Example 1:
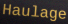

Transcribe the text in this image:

Haulage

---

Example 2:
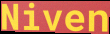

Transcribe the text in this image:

Niven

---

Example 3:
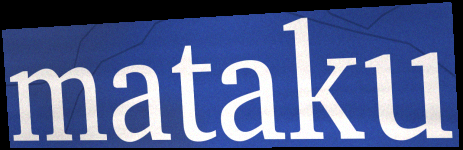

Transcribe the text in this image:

mataku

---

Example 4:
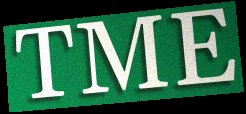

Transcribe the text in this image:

TME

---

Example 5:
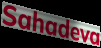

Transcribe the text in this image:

Sahadeva